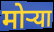
मोर्‍या